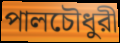
পালচৌধুরী